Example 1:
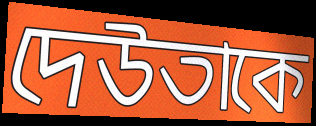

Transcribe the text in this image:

দেউতাকে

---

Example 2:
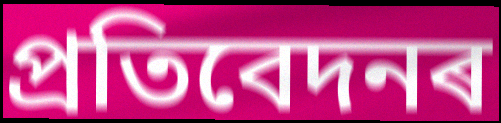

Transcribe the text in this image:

প্ৰতিবেদনৰ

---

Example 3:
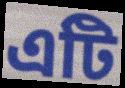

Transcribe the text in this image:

এটি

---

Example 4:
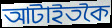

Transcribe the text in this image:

আটাইতকৈ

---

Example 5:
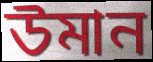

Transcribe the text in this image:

উমান